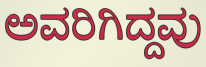
ಅವರಿಗಿದ್ದವು